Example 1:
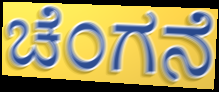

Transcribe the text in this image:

ಚೆಂಗನೆ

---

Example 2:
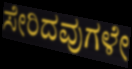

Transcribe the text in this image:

ಸೇರಿದವುಗಳೇ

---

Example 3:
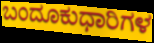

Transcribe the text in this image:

ಬಂದೂಕುಧಾರಿಗಳ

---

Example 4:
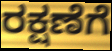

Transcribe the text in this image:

ರಕ್ಷಣೆಗೆ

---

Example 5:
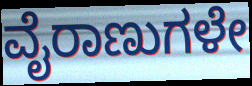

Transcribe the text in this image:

ವೈರಾಣುಗಳೇ